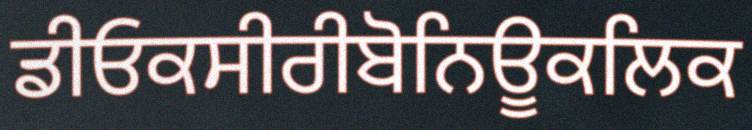
ਡੀਓਕਸੀਰੀਬੋਨਿਊਕਲਿਕ